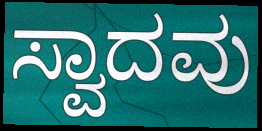
ಸ್ವಾದವು